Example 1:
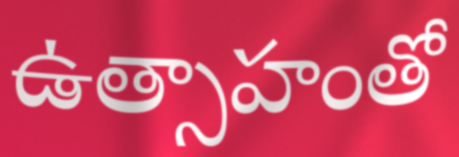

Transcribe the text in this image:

ఉత్సాహంతో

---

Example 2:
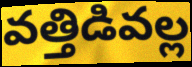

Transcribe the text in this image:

వత్తిడివల్ల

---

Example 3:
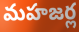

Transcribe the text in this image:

మహజర్ల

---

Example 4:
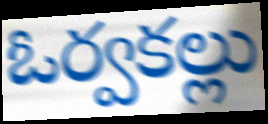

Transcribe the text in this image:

ఓర్వకల్లు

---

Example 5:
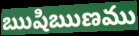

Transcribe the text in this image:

ఋషిఋణము